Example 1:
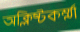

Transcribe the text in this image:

অক্লিষ্টকর্ম্মা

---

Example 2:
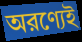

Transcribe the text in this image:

অরণ্যেই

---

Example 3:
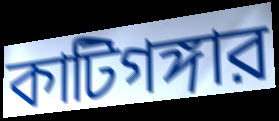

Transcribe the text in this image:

কাটিগঙ্গার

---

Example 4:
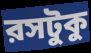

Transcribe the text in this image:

রসটুকু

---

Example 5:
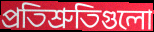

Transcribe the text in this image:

প্রতিশ্রুতিগুলো